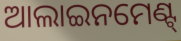
ଆଲାଇନମେଣ୍ଟ୍